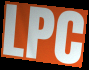
LPC